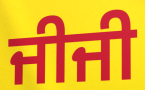
ਜੀਜੀ